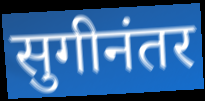
सुगीनंतर